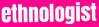
ethnologist